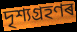
দৃশ্যগ্ৰহণৰ